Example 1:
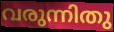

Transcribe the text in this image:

വരുന്നിതു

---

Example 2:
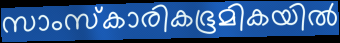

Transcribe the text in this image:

സാംസ്കാരികഭൂമികയിൽ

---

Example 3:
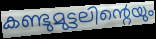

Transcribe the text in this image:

കണ്ടുമുട്ടലിന്റെയും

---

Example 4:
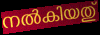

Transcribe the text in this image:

നൽകിയതു്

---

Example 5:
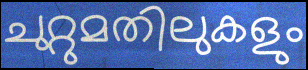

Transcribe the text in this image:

ചുറ്റുമതിലുകളും